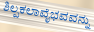
ಶಿಲ್ಪಕಲಾವೈಭವವನ್ನು